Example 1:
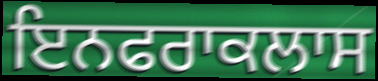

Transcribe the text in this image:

ਇਨਫਰਾਕਲਾਸ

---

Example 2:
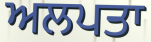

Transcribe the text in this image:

ਅਲਪਤਾ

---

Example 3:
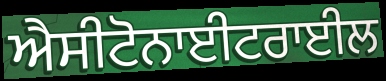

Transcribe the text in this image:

ਐਸੀਟੋਨਾਈਟਰਾਈਲ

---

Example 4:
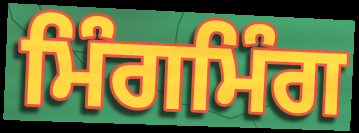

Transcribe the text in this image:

ਮਿੰਗਮਿੰਗ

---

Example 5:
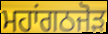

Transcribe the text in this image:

ਮਹਾਂਗਠਜੋਡ਼